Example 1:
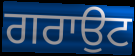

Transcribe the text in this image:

ਗਰਾਉਟ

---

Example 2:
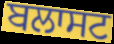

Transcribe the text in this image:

ਬਲਾਸਟ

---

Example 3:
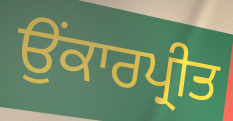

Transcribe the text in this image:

ਉਂਕਾਰਪ੍ਰੀਤ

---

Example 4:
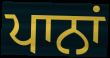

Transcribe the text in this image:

ਪਾਨਾਂ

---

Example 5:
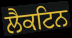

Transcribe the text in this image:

ਲੈਕਟਿਨ